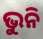
ଭୁନି